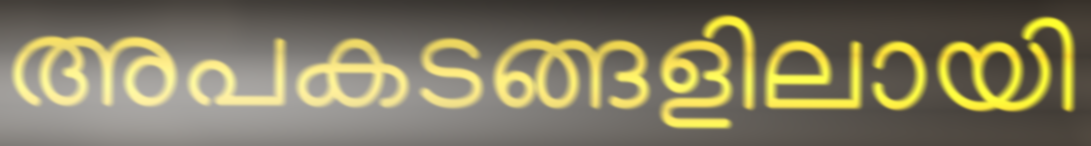
അപകടങ്ങളിലായി